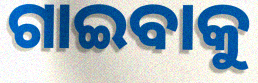
ଗାଇବାକୁ